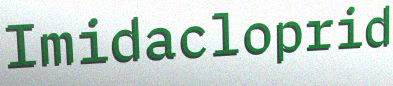
Imidacloprid